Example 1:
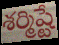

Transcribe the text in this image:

శర్మిష్టే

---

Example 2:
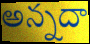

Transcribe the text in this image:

అన్నదా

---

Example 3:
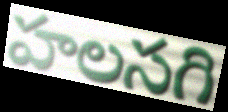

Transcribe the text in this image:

హలసగి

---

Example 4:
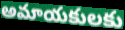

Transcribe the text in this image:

అమాయకులకు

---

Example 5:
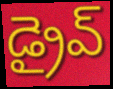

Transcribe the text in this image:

డ్రైవ్